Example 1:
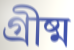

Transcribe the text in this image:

গ্রীষ্ম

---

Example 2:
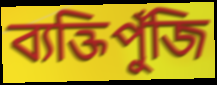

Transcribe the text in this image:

ব্যক্তিপুঁজি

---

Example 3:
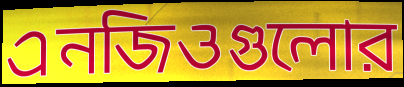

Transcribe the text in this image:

এনজিওগুলোর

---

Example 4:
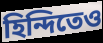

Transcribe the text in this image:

হিন্দিতেও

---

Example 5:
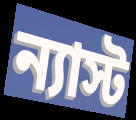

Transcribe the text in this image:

ন্যাস্ট